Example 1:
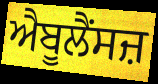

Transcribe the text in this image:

ਐਬੂਲੈਂਸਜ਼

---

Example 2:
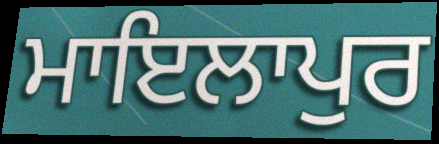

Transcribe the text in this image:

ਮਾਇਲਾਪੁਰ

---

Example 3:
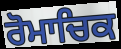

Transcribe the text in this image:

ਰੋਮਾਚਿਕ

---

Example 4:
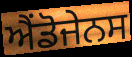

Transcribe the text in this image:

ਐਂਡੋਜੇਨਸ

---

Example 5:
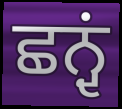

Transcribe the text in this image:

ਛਨ੍ਦਂ